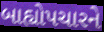
બાહ્યોપચારને